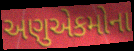
અણુએકમોના